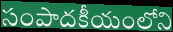
సంపాదకీయంలోని